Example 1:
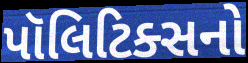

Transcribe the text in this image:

પૉલિટિક્સનો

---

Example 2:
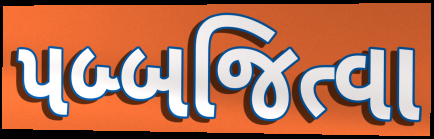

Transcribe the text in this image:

પબ્બજિત્વા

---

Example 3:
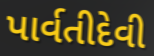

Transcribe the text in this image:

પાર્વતીદેવી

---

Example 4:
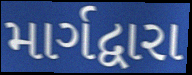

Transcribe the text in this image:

માર્ગદ્વારા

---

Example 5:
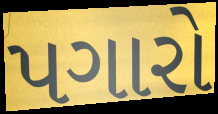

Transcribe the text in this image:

પગારો